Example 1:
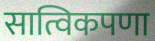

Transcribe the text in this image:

सात्विकपणा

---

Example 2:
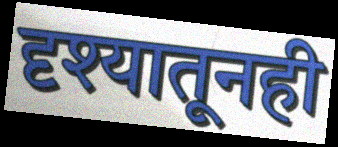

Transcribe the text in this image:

दृश्यातूनही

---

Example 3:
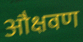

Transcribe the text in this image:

औक्षवण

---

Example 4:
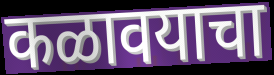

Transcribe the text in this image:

कळावयाचा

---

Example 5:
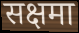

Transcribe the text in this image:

सक्षमा